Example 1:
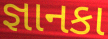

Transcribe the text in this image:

જ્ઞાનકા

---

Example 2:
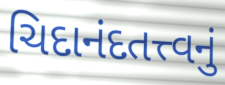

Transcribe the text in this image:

ચિદાનંદતત્ત્વનું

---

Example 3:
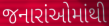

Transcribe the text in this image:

જનારાંઓમાંથી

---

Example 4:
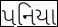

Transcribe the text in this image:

પનિયા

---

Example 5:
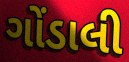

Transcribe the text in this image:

ગોંડાલી